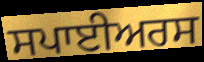
ਸਪਾਈਅਰਸ